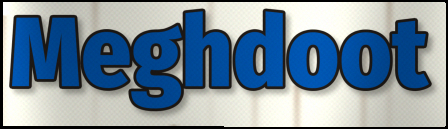
Meghdoot